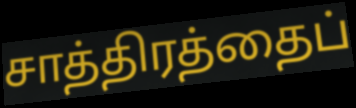
சாத்திரத்தைப்